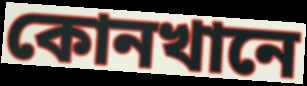
কোনখানে